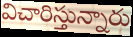
విచారిస్తున్నారు